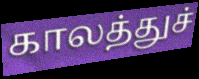
காலத்துச்